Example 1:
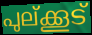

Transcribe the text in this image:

പുല്ക്കൂട്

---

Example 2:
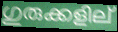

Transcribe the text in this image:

ഗുരുക്കളില്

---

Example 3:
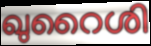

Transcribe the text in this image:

ഖുറൈശി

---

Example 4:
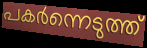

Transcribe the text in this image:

പകർന്നെടുത്ത്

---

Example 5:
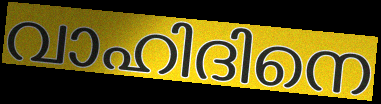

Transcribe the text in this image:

വാഹിദിനെ